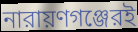
নারায়ণগঞ্জেরই